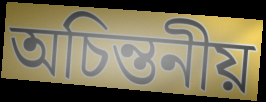
অচিন্তনীয়